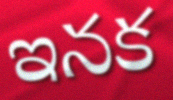
ఇనక